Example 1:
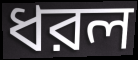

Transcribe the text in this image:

ধরল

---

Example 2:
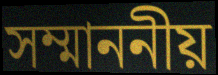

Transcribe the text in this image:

সম্মাননীয়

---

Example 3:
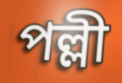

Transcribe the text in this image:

পল্লী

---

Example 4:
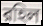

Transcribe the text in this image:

রহিল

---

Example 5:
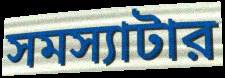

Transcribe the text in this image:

সমস্যাটার